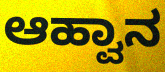
ಆಹ್ವಾನ